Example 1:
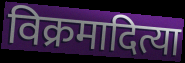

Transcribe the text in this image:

विक्रमादित्या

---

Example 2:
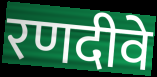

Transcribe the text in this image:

रणदीवे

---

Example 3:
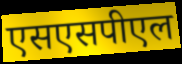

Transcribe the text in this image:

एसएसपीएल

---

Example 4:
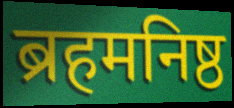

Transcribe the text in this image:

ब्रहमनिष्ठ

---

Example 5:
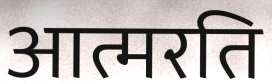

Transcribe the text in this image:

आत्मरति